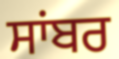
ਸਾਂਬਰ